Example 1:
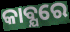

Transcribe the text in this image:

କାବ୍ଯରେ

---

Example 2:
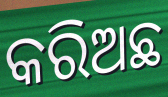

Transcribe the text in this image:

କରିଅଛ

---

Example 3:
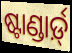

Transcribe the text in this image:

ଷ୍ଟାଣ୍ଡାର୍ଡ଼୍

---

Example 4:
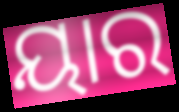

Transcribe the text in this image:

ୟାର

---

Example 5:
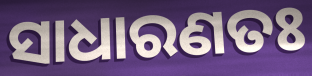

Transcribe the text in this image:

ସାଧାରଣତଃ